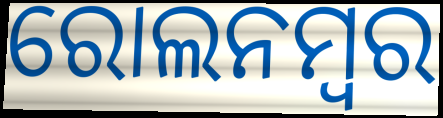
ରୋଲନମ୍ବର